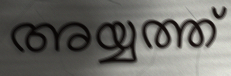
അയ്യത്ത്